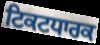
ਟਿਕਟਧਾਰਕ